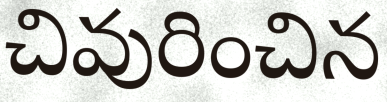
చివురించిన